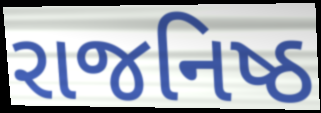
રાજનિષ્ઠ